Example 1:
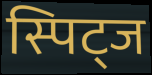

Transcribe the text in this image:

स्पिट्ज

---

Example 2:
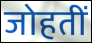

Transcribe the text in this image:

जोहतीं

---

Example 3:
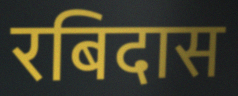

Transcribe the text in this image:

रबिदास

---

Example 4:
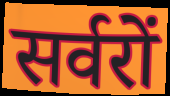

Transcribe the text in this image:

सर्वरों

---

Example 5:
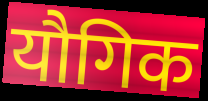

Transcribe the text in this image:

यौगिक